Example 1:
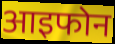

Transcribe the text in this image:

आइफोन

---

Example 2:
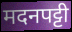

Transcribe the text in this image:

मदनपट्टी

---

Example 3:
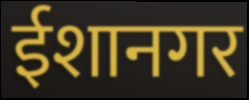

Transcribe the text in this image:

ईशानगर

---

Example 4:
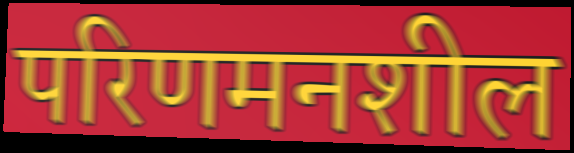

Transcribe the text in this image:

परिणमनशील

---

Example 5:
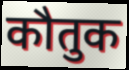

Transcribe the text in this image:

कौतुक